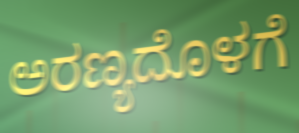
ಅರಣ್ಯದೊಳಗೆ